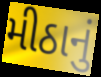
મીઠાનું